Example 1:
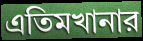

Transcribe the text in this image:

এতিমখানার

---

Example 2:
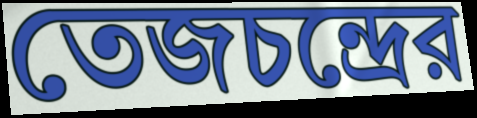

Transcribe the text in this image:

তেজচন্দ্রের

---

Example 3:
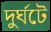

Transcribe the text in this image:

দুর্ঘটে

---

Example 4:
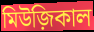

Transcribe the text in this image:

মিউজ়িকাল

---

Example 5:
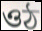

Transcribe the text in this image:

ওঠ